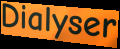
Dialyser